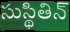
సుస్థితిన్